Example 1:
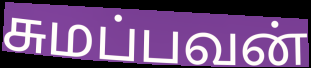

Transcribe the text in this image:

சுமப்பவன்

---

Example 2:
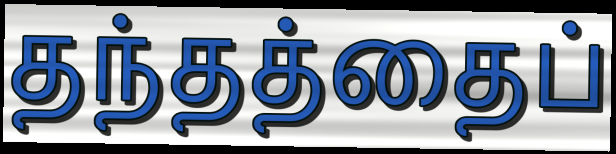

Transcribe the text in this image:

தந்தத்தைப்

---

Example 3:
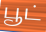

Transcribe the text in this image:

பூட்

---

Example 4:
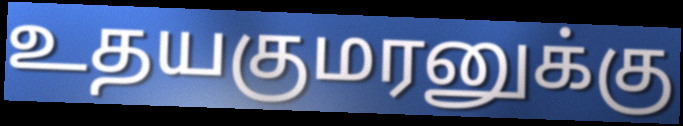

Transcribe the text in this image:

உதயகுமரனுக்கு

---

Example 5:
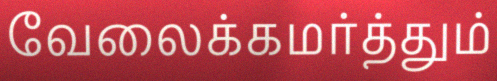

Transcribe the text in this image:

வேலைக்கமர்த்தும்